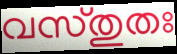
വസ്തുതഃ